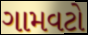
ગામવટો